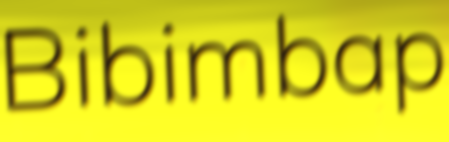
Bibimbap